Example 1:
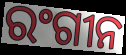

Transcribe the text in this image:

ରଂଗୀନ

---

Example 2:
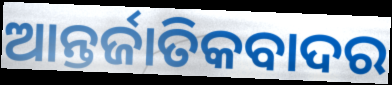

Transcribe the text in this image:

ଆନ୍ତର୍ଜାତିକବାଦର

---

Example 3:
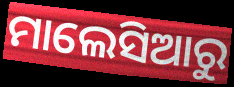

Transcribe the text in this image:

ମାଲେସିଆରୁ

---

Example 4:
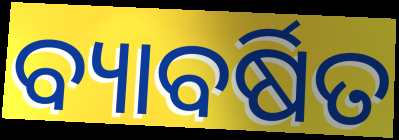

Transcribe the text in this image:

ବ୍ୟାବର୍ଷିତ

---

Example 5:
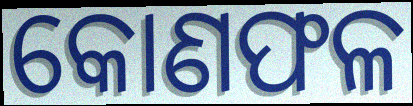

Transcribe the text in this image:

କୋଣଫଳ